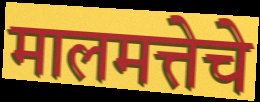
मालमत्तेचे